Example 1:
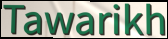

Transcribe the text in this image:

Tawarikh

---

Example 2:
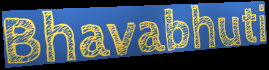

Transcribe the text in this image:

Bhavabhuti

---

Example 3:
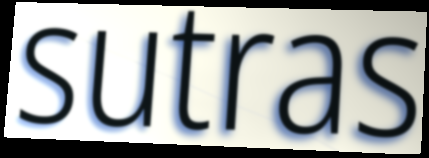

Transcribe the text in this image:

sutras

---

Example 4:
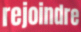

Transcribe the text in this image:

rejoindre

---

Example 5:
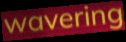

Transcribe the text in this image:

wavering